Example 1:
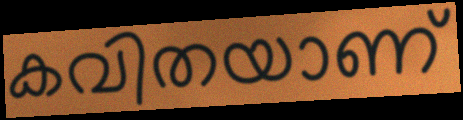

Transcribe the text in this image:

കവിതയാണ്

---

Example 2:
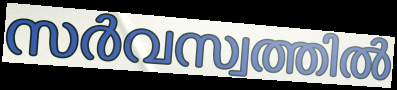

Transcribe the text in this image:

സർവസ്വത്തിൽ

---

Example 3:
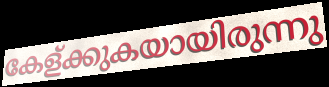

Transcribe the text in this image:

കേള്ക്കുകയായിരുന്നു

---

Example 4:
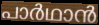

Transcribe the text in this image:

പാർഥാൻ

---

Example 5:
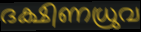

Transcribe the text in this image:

ദക്ഷിണധ്രുവ